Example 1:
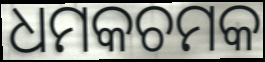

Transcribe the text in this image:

ଧମକଚମକ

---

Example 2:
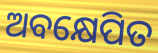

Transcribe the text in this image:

ଅବକ୍ଷେପିତ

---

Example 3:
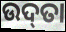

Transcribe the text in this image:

ଉଦ୍‌ତା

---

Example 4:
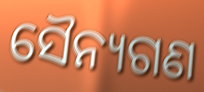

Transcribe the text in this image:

ସୈନ୍ୟଗଣ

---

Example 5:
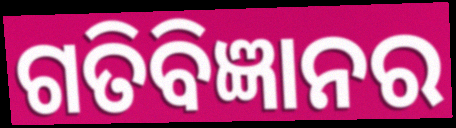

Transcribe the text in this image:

ଗତିବିଜ୍ଞାନର